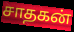
சாதகன்